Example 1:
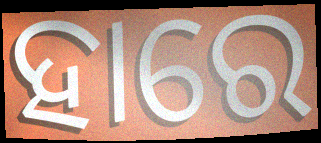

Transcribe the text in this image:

ହାରେ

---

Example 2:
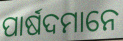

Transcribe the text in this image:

ପାର୍ଷଦମାନେ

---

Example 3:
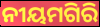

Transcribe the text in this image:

ନୀୟମଗିରି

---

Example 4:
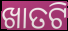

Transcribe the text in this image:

ଖାତଟି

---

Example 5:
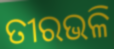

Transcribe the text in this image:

ତୀରଭଳି